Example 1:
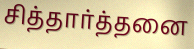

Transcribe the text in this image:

சித்தார்த்தனை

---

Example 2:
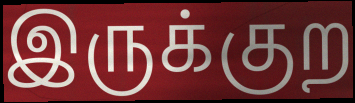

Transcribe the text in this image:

இருக்குற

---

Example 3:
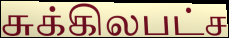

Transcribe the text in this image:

சுக்கிலபட்ச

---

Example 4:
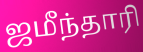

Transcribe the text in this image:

ஜமீந்தாரி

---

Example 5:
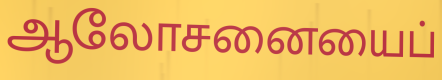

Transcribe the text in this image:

ஆலோசனையைப்